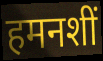
हमनशीं